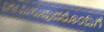
ನಿರ್ಗಮಿಸುವುದರೊಂದಿಗೆ